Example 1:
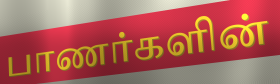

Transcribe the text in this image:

பாணர்களின்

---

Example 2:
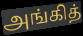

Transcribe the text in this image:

அங்கித்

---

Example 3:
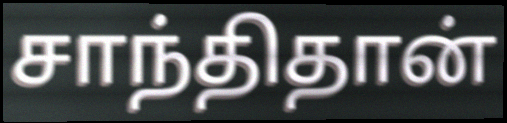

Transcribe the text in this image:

சாந்திதான்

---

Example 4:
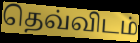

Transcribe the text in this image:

தெவ்விடம்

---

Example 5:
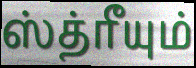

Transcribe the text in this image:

ஸ்த்ரீயும்